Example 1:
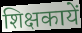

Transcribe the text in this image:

शिक्षकायें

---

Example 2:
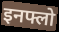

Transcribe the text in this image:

इनफ्लो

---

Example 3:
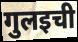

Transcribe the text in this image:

गुलइची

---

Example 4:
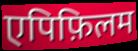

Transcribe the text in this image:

एपिफ़िलम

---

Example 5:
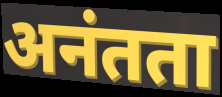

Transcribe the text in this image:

अनंतता